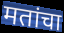
मतांचा